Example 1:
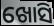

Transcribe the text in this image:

ଖୋସି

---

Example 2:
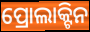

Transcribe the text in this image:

ପ୍ରୋଲାକ୍ଟିନ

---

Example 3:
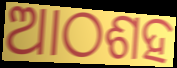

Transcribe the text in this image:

ଆଠଶହ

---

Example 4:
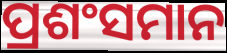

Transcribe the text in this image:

ପ୍ରଶଂସମାନ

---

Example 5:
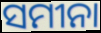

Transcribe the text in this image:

ସମୀନା